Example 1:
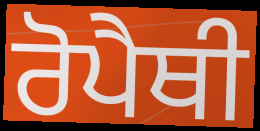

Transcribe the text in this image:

ਰੋਪੈਥੀ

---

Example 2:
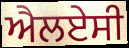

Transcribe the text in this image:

ਐਲਏਸੀ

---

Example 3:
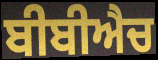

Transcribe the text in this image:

ਬੀਬੀਐਚ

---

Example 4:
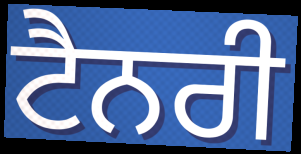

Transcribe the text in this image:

ਟੈਨਰੀ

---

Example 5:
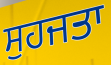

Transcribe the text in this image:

ਸੁਹਜਤਾ